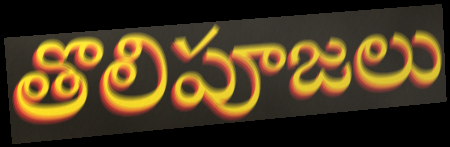
తొలిపూజలు